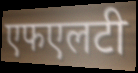
एफएलटी